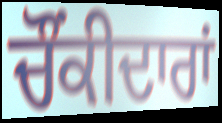
ਚੌਂਕੀਦਾਰਾਂ